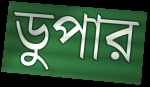
ডুপার